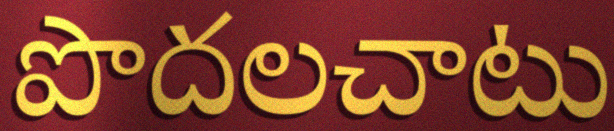
పొదలచాటు